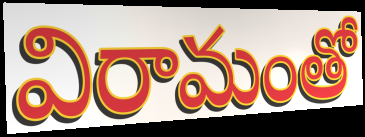
విరామంతో